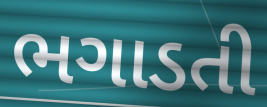
ભગાડતી